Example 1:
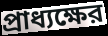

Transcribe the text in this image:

প্রাধ্যক্ষের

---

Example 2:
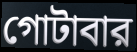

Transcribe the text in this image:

গোটাবার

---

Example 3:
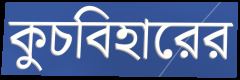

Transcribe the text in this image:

কুচবিহারের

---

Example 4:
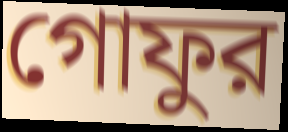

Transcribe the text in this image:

গোফুর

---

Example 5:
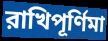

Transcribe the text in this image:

রাখিপূর্ণিমা